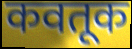
कवतूक